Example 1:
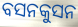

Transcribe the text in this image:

ବସନକୁସନ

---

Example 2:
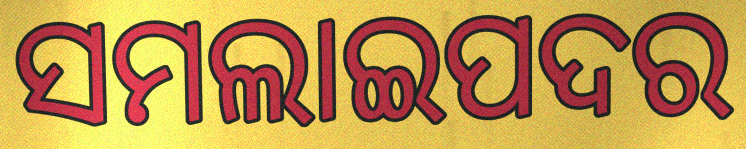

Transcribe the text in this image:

ସମଲାଇପଦର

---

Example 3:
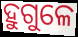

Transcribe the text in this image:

ହୁଗୁଳେ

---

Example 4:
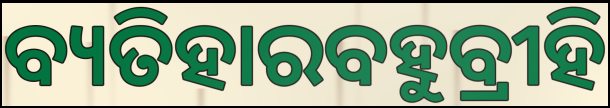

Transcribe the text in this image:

ବ୍ୟତିହାରବହୁବ୍ରୀହି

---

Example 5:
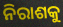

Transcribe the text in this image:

ନିରାଶକୁ